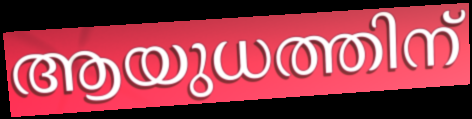
ആയുധത്തിന്